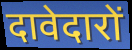
दावेदारों